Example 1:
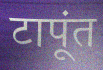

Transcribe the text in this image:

टापूंत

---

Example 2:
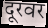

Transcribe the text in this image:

दूरवर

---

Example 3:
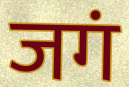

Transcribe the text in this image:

जगं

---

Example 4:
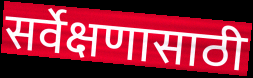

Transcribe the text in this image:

सर्वेक्षणासाठी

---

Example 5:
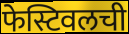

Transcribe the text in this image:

फेस्टिवलची